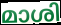
മാശി